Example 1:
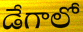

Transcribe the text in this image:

డేగాలో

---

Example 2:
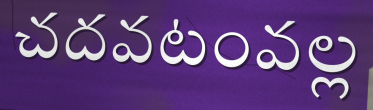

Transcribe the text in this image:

చదవటంవల్ల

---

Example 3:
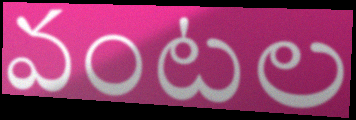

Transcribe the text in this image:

వంటల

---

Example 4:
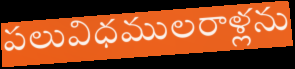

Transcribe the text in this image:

పలువిధములరాళ్లను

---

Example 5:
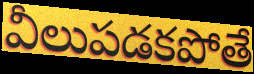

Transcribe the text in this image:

వీలుపడకపోతే